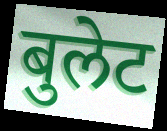
बुलेट